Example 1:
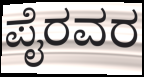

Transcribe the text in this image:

ಪೈರವರ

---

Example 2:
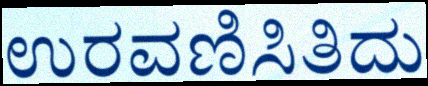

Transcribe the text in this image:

ಉರವಣಿಸಿತಿದು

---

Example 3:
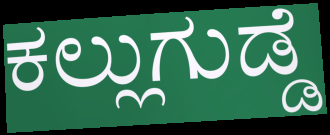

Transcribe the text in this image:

ಕಲ್ಲುಗುಡ್ಡೆ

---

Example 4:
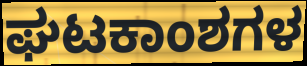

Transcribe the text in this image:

ಘಟಕಾಂಶಗಳ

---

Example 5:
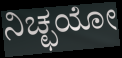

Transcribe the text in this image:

ನಿಚ್ಛಯೋ